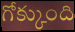
గోక్కుంది